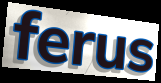
ferus